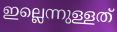
ഇല്ലെന്നുള്ളത്